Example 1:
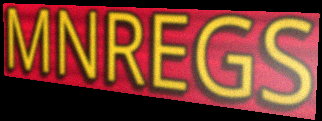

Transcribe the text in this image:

MNREGS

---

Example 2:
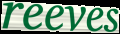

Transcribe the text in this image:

reeves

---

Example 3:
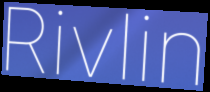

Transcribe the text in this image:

Rivlin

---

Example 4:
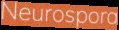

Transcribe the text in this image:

Neurospora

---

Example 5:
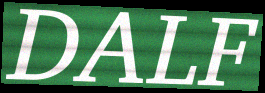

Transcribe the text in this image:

DALF